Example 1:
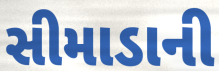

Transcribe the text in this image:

સીમાડાની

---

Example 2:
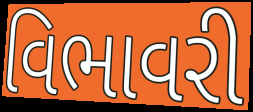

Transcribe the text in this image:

વિભાવરી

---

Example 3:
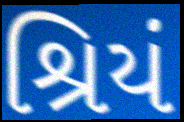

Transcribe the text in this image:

શ્રિયં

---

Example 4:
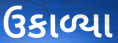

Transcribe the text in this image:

ઉકાળ્યા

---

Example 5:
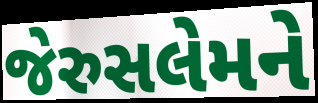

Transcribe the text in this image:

જેરુસલેમને